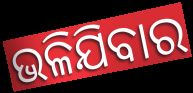
ଭଳିଯିବାର